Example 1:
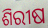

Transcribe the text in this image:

ଶିରୀଷ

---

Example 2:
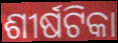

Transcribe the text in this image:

ଶୀର୍ଷଟିକା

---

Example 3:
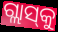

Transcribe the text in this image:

ଗ୍ଲାସ୍‌କୁ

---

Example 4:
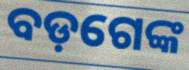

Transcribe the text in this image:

ବଡ଼ଗେଙ୍କ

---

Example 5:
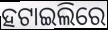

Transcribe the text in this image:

ହଟାଇଲିରେ